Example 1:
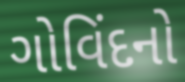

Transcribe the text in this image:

ગોવિંદનો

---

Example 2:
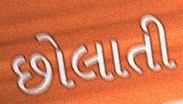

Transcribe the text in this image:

છોલાતી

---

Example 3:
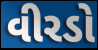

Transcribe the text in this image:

વીરડો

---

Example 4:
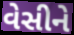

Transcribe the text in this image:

વેસીને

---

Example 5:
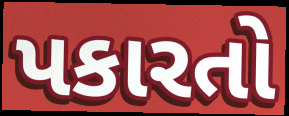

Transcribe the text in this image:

પકારતો